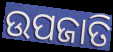
ଉପଜାତି